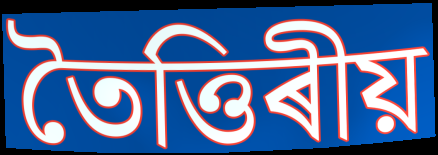
তৈত্তিৰীয়